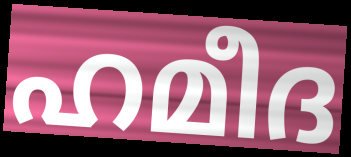
ഹമീദ